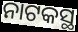
ନାଟକସ୍ଥ